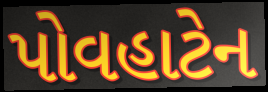
પોવહાટેન